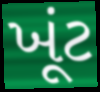
ખૂંટ